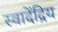
स्वादेंद्रिय